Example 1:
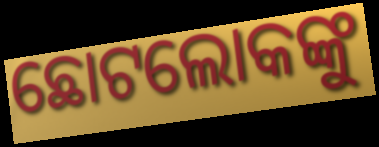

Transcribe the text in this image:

ଛୋଟଲୋକଙ୍କୁ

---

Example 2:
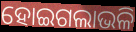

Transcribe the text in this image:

ହୋଇଗଲାଭଳି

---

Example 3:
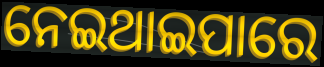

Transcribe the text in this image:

ନେଇଥାଇପାରେ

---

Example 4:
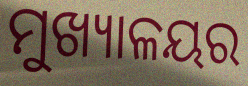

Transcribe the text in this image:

ମୁଖ୍ୟାଳୟର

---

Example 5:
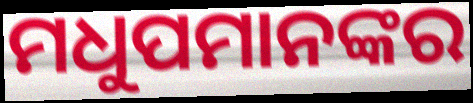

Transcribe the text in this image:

ମଧୁପମାନଙ୍କର